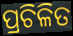
ପ୍ରଚିଳିତ